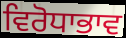
ਵਿਰੋਧਾਭਾਵ